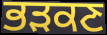
ਭੜਕਣ